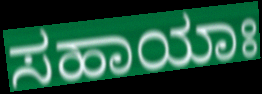
ಸಹಾಯಾಃ